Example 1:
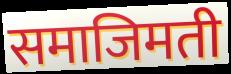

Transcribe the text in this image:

समाजिमती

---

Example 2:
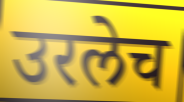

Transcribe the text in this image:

उरलेच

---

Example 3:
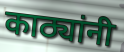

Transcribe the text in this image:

काठ्यांनी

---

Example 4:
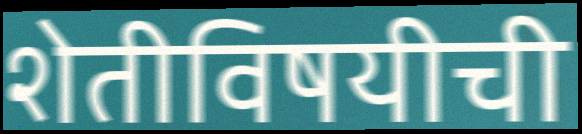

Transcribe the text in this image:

शेतीविषयीची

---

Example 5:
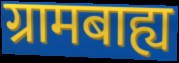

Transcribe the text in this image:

ग्रामबाह्य